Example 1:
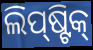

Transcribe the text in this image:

ଲିପ୍‍ଷ୍ଟିକ୍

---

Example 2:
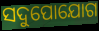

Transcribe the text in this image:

ସଦୁପୋଯୋଗ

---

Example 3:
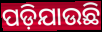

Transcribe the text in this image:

ପଡ଼ିଯାଉଛି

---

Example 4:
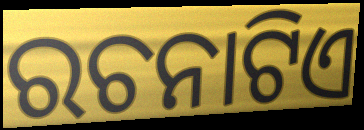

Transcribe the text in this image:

ରଚନାଟିଏ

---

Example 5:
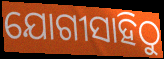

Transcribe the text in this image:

ଯୋଗୀସାହିଠୁ